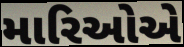
મારિઓએ